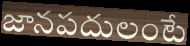
జానపదులంటే